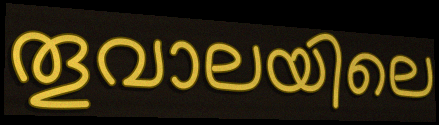
തൂവാലയിലെ